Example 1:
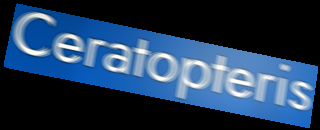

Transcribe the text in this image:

Ceratopteris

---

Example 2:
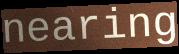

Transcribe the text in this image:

nearing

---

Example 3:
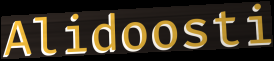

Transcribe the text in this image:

Alidoosti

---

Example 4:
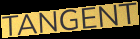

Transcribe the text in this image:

TANGENT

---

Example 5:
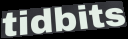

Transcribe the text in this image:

tidbits